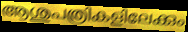
ആശുപത്രികളിലേക്കും